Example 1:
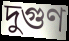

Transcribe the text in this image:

দুগুণ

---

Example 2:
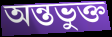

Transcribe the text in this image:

অন্তভুক্ত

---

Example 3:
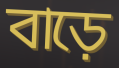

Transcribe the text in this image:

বাড়ে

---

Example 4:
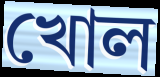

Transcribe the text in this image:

খোল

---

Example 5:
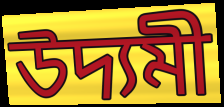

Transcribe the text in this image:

উদ্যমী